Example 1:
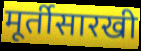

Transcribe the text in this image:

मूर्तीसारखी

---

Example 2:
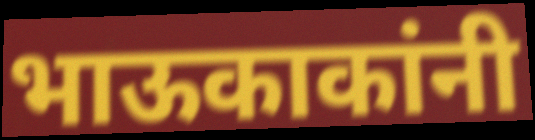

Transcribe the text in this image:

भाऊकाकांनी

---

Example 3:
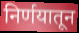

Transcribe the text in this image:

निर्णयातून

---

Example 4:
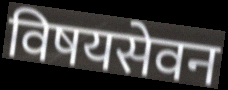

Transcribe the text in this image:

विषयसेवन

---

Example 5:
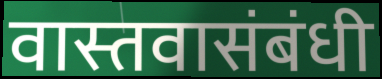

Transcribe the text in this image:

वास्तवासंबंधी